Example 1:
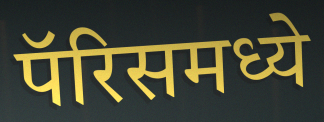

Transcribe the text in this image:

पॅरिसमध्ये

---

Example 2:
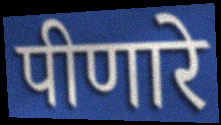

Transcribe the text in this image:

पीणारे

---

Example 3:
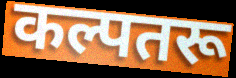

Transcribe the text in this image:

कल्पतरू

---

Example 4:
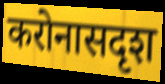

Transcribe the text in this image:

करोनासदृश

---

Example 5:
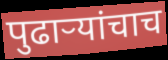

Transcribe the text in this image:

पुढाऱ्यांचाच